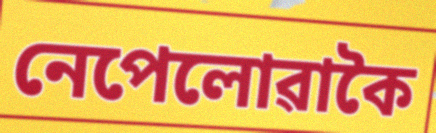
নেপেলোৱাকৈ